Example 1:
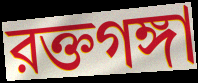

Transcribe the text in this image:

রক্তগঙ্গা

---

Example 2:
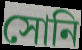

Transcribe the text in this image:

সোনি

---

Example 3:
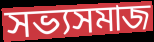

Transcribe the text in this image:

সভ্যসমাজ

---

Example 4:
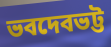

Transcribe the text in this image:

ভবদেবভট্ট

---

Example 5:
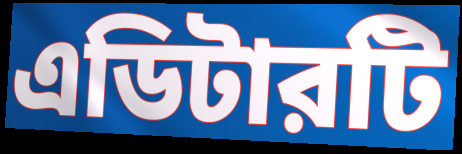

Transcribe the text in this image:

এডিটারটি